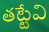
తట్టేవి